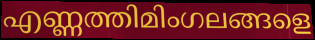
എണ്ണത്തിമിംഗലങ്ങളെ